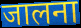
जालना